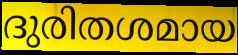
ദുരിതശമായ